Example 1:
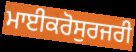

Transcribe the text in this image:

ਮਾਈਕਰੋਸੁਰਜਰੀ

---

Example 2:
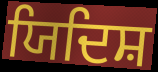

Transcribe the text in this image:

ਯਿਦਿਸ਼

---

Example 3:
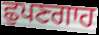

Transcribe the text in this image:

ਛੁਪਣਗਾਹ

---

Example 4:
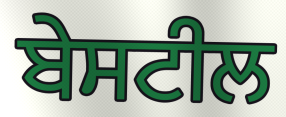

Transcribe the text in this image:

ਬੇਸਟੀਲ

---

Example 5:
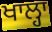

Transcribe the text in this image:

ਖਾਲ੍ਹਾ